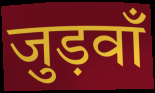
जुड़वाँ